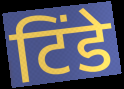
टिंडे